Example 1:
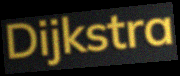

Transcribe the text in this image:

Dijkstra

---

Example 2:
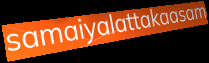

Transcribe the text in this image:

samaiyalattakaasam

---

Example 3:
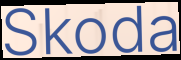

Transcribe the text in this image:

Skoda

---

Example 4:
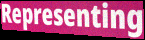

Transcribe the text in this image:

Representing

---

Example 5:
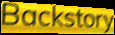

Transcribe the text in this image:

Backstory